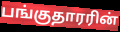
பங்குதாரரின்